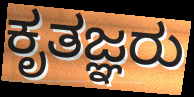
ಕೃತಜ್ಞರು